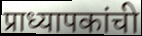
प्राध्यापकांची